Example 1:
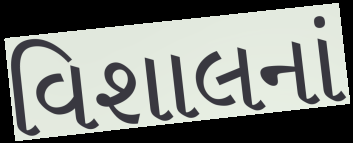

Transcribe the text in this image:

વિશાલનાં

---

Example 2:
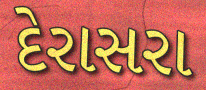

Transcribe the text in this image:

દેરાસરા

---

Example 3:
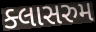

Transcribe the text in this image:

ક્લાસરુમ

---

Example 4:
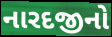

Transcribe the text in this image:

નારદજીનો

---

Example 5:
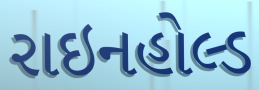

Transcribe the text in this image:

રાઇનહોલ્ડ